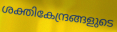
ശക്തികേന്ദ്രങ്ങളുടെ